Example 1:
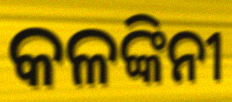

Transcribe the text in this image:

କଳଙ୍କିନୀ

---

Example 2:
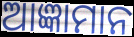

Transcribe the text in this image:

ଆଜ୍ଞାମାନ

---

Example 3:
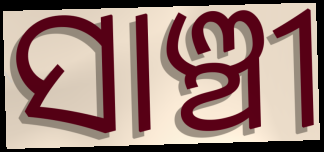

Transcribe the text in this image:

ସାଞ୍ଚୀ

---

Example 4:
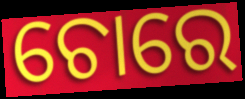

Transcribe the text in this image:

ଚୋରେ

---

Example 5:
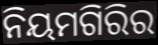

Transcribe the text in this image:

ନିୟମଗିରିର